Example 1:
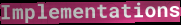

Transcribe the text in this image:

Implementations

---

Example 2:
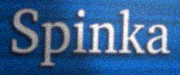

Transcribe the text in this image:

Spinka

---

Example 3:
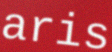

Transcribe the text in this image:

aris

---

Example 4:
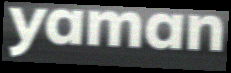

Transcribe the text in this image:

yaman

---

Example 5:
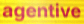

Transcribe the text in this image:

agentive